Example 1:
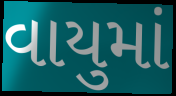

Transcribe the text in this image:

વાયુમાં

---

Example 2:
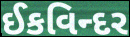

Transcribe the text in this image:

ઈકવિન્દર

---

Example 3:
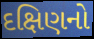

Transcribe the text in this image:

દક્ષિણનો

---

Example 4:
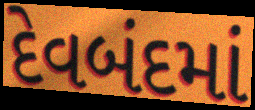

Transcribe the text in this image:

દેવબંદમાં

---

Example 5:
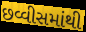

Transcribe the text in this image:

છવ્વીસમાંથી